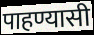
पाहण्यासी